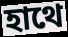
হাথে